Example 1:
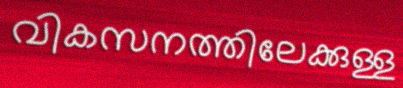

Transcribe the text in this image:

വികസനത്തിലേക്കുള്ള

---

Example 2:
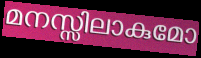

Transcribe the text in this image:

മനസ്സിലാകുമോ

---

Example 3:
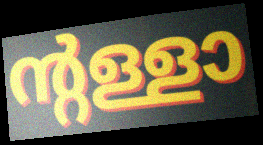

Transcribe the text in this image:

ന്റള്ളാ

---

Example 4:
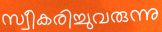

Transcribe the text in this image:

സ്വീകരിച്ചുവരുന്നു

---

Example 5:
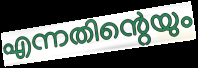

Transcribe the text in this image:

എന്നതിന്റെയും